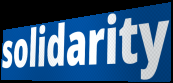
solidarity